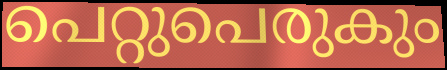
പെറ്റുപെരുകും